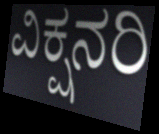
ವಿಕ್ಷನರಿ